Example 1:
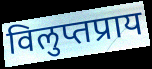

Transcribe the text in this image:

विलुप्तप्राय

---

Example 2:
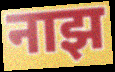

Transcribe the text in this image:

नाझ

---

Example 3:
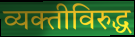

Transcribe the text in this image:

व्यक्तीविरुद्ध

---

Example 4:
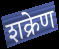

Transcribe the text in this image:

शक्रेण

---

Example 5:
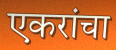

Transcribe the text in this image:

एकरांचा